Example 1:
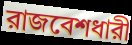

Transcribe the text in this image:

রাজবেশধারী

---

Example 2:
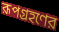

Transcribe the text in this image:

রূপগ্রহণের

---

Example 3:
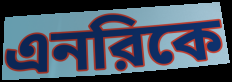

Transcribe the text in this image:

এনরিকে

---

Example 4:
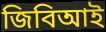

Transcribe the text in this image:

জিবিআই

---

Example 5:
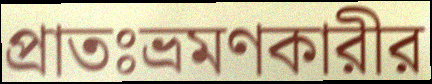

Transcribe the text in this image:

প্রাতঃভ্রমণকারীর